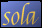
sola